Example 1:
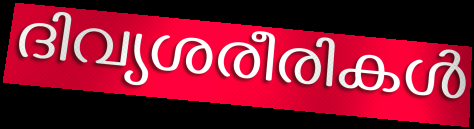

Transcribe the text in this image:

ദിവ്യശരീരികൾ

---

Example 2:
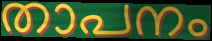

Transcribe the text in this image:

താപനം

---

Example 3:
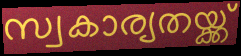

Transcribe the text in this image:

സ്വകാര്യതയ്ക്ക്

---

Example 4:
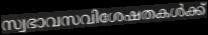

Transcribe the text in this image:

സ്വഭാവസവിശേഷതകൾക്ക്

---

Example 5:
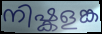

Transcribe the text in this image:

നിഷ്കളങ്ക